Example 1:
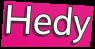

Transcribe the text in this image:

Hedy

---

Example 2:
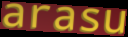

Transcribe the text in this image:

arasu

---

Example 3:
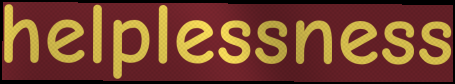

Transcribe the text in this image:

helplessness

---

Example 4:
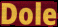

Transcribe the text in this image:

Dole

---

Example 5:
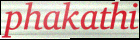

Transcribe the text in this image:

phakathi